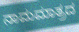
ನಾಮಮಾತ್ರದ